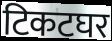
टिकटघर